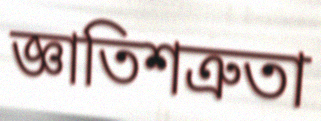
জ্ঞাতিশত্রুতা